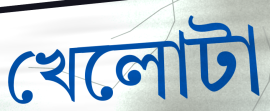
খেলোটা